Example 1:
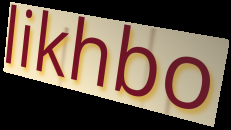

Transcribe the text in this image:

likhbo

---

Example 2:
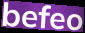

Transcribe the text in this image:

befeo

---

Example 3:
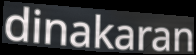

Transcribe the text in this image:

dinakaran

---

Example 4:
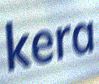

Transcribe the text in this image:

kera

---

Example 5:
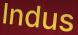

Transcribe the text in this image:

Indus